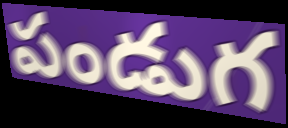
పండుగ